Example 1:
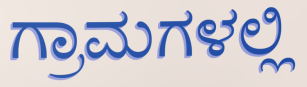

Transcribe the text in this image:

ಗ್ರಾಮಗಳಲ್ಲಿ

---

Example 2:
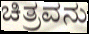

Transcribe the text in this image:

ಚಿತ್ರವನು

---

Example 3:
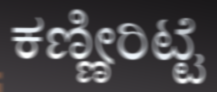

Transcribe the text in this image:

ಕಣ್ಣೀರಿಟ್ಟೆ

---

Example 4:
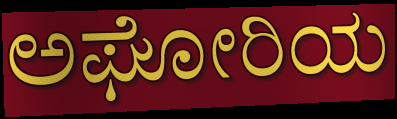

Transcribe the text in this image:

ಅಘೋರಿಯ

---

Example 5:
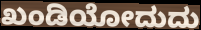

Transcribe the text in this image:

ಖಂಡಿಯೋದುದು